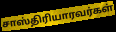
சாஸ்திரியாரவர்கள்